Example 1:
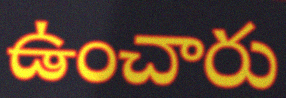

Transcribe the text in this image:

ఉంచారు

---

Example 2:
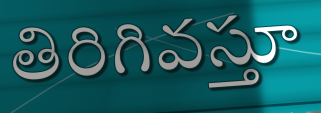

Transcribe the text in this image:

తిరిగివస్తూ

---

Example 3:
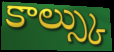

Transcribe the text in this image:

కాల్స్కు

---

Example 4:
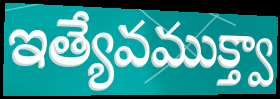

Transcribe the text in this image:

ఇత్యేవముక్త్వా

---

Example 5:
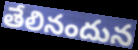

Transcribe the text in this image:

తేలినందున